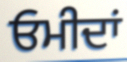
ਓਮੀਦਾਂ